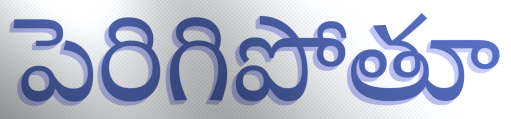
పెరిగిపోతూ